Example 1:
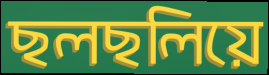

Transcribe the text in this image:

ছলছলিয়ে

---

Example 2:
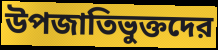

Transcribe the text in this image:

উপজাতিভুক্তদের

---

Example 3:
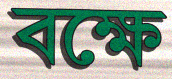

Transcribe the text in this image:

বক্ষে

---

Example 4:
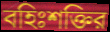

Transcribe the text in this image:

বহিঃশক্তির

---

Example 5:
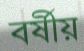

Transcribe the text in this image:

বর্ষীয়